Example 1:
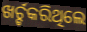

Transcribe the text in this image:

ଖର୍ଚ୍ଚକରିଥିଲେ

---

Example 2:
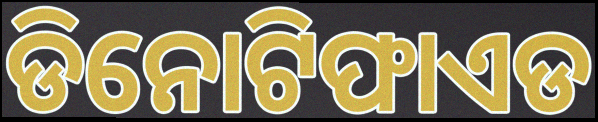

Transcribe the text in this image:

ଡିନୋଟିଫାଏଡ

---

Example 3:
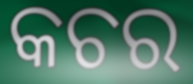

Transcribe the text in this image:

କଚର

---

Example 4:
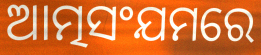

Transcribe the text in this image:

ଆତ୍ମସଂଯମରେ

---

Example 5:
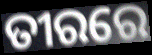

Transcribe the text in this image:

ତୀରରେ